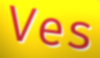
Ves